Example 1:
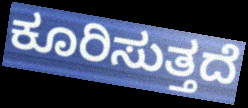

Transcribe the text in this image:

ಕೂರಿಸುತ್ತದೆ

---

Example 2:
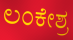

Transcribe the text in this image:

ಲಂಕೇಶ್ರ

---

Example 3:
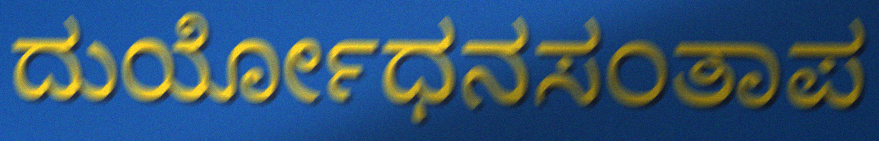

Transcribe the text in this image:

ದುರ್ಯೋಧನಸಂತಾಪ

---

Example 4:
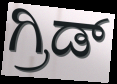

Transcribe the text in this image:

ಗ್ರಿಡ್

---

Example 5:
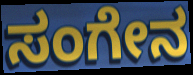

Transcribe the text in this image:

ಸಂಗೇನ